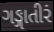
ગઙ્ગાતીરં